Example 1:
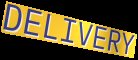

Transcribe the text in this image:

DELIVERY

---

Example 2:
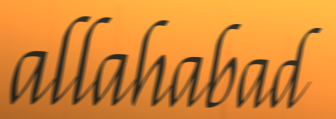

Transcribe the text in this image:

allahabad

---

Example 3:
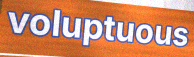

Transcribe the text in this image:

voluptuous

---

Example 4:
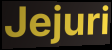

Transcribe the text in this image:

Jejuri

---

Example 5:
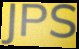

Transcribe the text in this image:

JPS